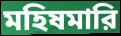
মহিষমারি